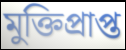
মুক্তিপ্রাপ্ত